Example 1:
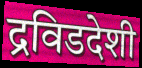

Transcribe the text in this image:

द्रविडदेशी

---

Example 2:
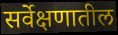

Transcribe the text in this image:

सर्वेक्षणातील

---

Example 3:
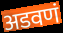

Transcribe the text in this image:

अडवणं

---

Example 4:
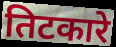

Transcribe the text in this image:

तिटकारे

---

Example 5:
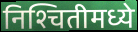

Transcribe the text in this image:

निश्चितीमध्ये